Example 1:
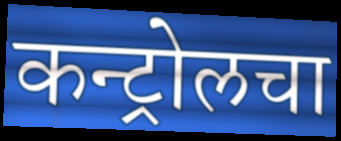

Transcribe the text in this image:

कन्ट्रोलचा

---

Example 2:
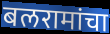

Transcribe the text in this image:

बलरामांचा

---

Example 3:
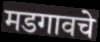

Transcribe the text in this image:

मडगावचे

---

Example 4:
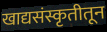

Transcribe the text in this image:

खाद्यसंस्कृतीतून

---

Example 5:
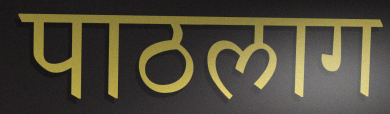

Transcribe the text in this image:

पाठलाग